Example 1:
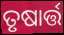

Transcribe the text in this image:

ତୃଷାର୍ତ୍ତ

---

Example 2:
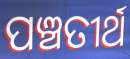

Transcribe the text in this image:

ପଞ୍ଚତୀର୍ଥ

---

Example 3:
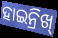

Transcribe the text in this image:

ହାଇନ୍ରିଖ୍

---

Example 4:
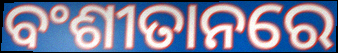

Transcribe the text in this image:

ବଂଶୀତାନରେ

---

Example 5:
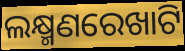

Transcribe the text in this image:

ଲକ୍ଷ୍ମଣରେଖାଟି